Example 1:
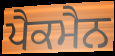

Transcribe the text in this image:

ਪੈਕਮੈਨ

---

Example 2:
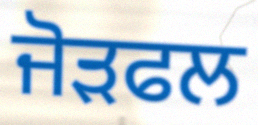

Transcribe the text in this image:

ਜੋੜਫਲ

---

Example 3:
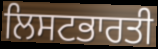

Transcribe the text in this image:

ਲਿਸਟਭਾਰਤੀ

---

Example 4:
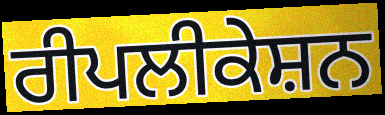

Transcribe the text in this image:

ਰੀਪਲੀਕੇਸ਼ਨ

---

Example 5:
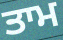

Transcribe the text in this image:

ਤਾਮ